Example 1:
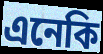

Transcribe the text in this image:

এনেকি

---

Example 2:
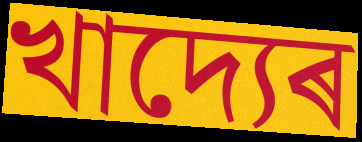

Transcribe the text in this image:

খাদ্যেৰ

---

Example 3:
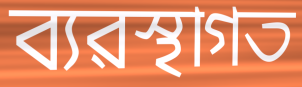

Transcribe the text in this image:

ব্যৱস্থাগত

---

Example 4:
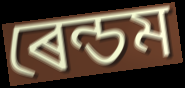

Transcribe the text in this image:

ৰেন্ডম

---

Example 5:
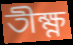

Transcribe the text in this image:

তীক্ষ্ণ